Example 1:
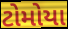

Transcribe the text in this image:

ટોમોયા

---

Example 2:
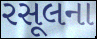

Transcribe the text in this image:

રસૂલના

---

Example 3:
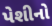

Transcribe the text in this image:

પેશીનો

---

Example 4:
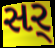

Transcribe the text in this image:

સર્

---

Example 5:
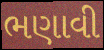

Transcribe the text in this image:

ભણાવી